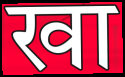
खा